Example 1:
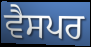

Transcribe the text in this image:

ਵੈਸਪਰ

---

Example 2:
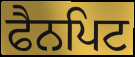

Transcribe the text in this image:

ਫੈਨਪਿਟ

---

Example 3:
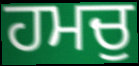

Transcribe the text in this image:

ਹਮਚੁ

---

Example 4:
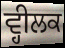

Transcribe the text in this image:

ਵ੍ਹੀਲਕ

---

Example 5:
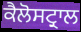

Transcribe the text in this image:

ਕੈਲੋਸਟ੍ਰਾਲ